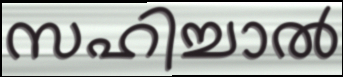
സഹിച്ചാൽ